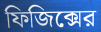
ফিজিক্সের